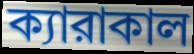
ক্যারাকাল